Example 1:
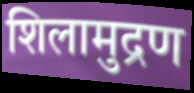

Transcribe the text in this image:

शिलामुद्रण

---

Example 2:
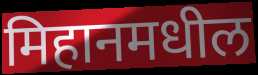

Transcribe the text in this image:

मिहानमधील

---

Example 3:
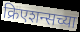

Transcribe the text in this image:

क्रिएशन्सच्या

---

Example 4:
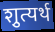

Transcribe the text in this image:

श्रुत्यर्थ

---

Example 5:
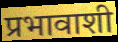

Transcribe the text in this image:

प्रभावाशी